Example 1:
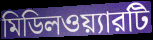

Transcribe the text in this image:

মিডিলওয়্যারটি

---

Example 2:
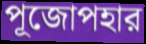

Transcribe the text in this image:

পূজোপহার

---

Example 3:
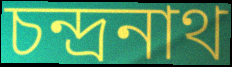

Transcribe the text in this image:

চন্দ্রনাথ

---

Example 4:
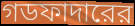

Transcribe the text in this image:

গডফাদারের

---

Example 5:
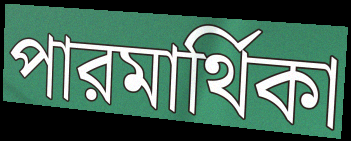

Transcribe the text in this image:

পারমার্থিকা